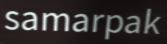
samarpak